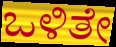
ಒಳಿತೇ